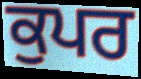
ਕੁਪਰ